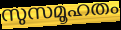
സുസമൂഹതം